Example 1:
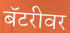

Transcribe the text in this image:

बॅटरीवर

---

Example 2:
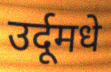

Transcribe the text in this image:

उर्दूमधे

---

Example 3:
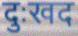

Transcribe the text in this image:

दुःखद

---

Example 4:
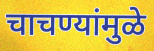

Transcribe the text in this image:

चाचण्यांमुळे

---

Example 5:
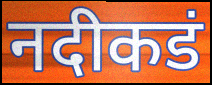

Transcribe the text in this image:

नदीकडं